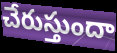
చేరుస్తుందా